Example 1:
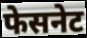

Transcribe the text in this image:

फेसनेट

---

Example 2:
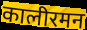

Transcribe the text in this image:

कालीरमन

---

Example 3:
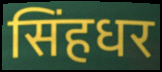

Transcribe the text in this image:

सिंहधर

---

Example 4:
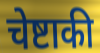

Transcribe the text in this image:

चेष्टाकी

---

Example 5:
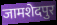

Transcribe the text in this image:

जामशेदपुर